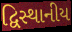
દ્વિસ્થાનીય